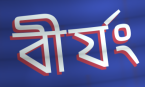
বীর্যং